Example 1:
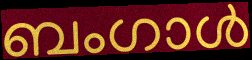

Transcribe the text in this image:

ബംഗാൾ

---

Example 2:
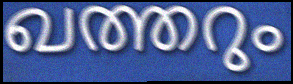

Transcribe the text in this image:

ഖത്തറും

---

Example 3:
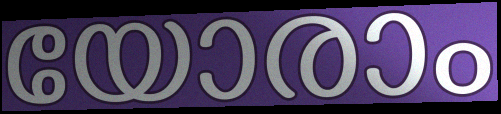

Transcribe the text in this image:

യോരാം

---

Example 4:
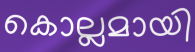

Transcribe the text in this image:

കൊല്ലമായി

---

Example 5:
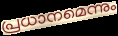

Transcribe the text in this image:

പ്രധാനമെന്നും